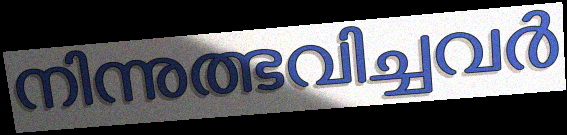
നിന്നുത്ഭവിച്ചവർ